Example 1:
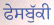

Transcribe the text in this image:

ਫੇਸਬੁੱਕੀ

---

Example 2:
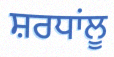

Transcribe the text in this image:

ਸ਼ਰਧਾਂਲੂ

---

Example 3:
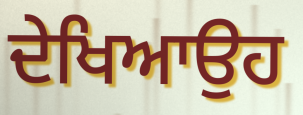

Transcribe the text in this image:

ਦੇਖਿਆਉਹ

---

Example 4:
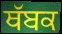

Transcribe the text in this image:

ਥੱਬਕ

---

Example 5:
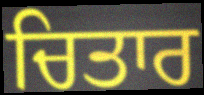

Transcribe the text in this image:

ਚਿਤਾਰ